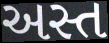
અસ્ત